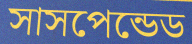
সাসপেন্ডেড